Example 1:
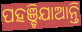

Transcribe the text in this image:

ପହଞ୍ଚିଯାଆନ୍ତି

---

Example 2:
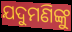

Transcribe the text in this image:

ଯଦୁମଣିଙ୍କୁ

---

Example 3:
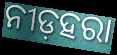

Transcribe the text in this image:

ନୀଡ଼ହରା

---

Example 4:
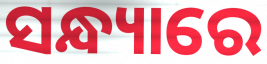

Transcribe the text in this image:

ସନ୍ଧ୍ୟାରେ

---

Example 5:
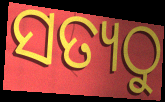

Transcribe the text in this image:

ସତ୍ୟଠୁ